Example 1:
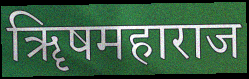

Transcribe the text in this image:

ॠिषमहाराज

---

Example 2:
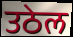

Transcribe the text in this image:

उठेल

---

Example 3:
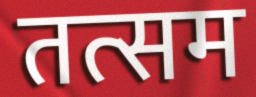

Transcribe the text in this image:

तत्सम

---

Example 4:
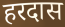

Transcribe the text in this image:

हरदास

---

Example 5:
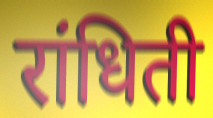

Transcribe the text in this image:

रांधिती